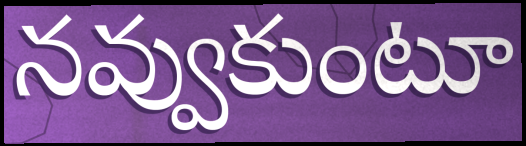
నవ్వుకుంటూ